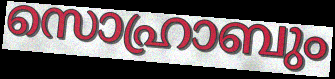
സൊഹ്രാബും